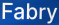
Fabry